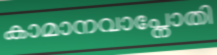
കാമാനവാപ്നോതി